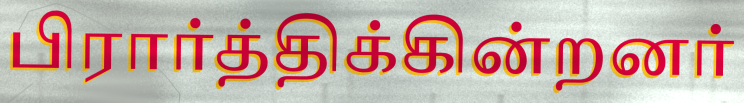
பிரார்த்திக்கின்றனர்